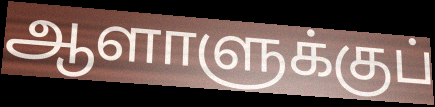
ஆளாளுக்குப்